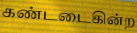
கண்டடைகின்ற